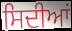
ਸਿਦੀਆਂ